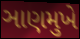
ઞાણમુખે